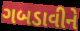
ગબડાવીને